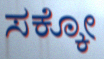
ಸಕ್ಕೋ